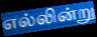
எல்லின்று